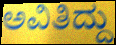
ಅವಿತಿದ್ದು